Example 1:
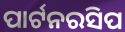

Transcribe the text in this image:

ପାର୍ଟନରସିପ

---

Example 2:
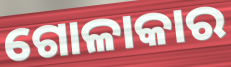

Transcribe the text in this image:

ଗୋଳାକାର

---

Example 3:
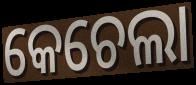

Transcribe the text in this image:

କେଚେଲା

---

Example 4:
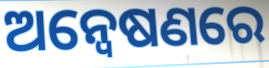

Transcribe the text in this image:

ଅନ୍ବେଷଣରେ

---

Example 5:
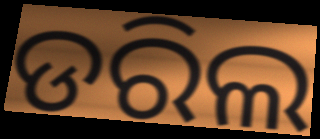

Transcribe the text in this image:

ଡରିଲ